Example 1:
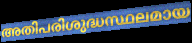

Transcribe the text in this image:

അതിപരിശുദ്ധസ്ഥലമായ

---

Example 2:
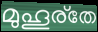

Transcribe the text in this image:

മുഹൂര്തേ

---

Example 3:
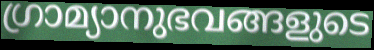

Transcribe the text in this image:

ഗ്രാമ്യാനുഭവങ്ങളുടെ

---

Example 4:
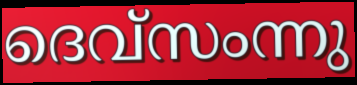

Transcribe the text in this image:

ദെവ്സംന്നു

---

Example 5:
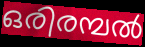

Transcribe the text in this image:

ഒരിരമ്പൽ